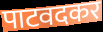
पाटवदकर